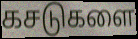
கசடுகளை